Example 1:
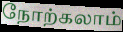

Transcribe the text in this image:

நோற்கலாம்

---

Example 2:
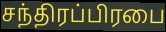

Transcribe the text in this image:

சந்திரப்பிரபை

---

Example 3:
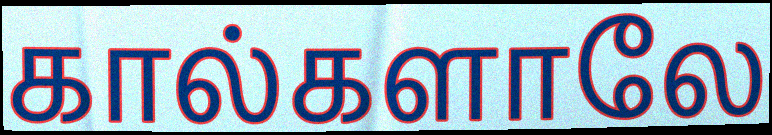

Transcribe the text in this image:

கால்களாலே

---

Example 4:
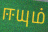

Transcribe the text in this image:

ஈயும்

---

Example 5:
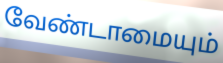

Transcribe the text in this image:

வேண்டாமையும்